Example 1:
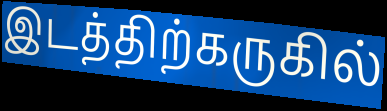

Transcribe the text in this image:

இடத்திற்கருகில்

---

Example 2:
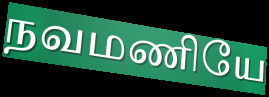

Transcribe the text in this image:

நவமணியே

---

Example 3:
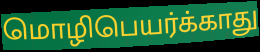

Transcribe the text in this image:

மொழிபெயர்க்காது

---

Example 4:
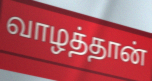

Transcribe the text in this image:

வாழத்தான்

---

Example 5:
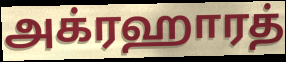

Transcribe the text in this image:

அக்ரஹாரத்